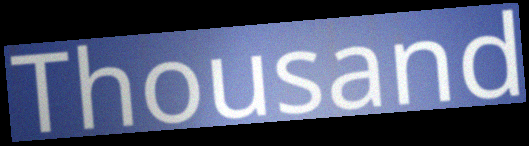
Thousand